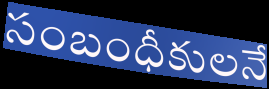
సంబంధీకులనే